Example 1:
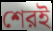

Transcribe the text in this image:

শেরই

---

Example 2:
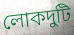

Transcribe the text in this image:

লোকদুটি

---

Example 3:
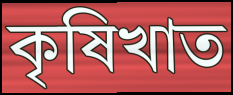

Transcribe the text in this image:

কৃষিখাত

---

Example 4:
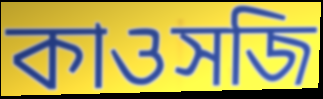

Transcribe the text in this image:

কাওসজি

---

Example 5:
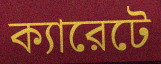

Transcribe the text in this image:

ক্যারেটে